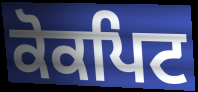
ਕੋਕਪਿਟ